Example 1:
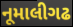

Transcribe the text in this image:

નૂમાલીગઢ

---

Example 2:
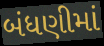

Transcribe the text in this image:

બંધણીમાં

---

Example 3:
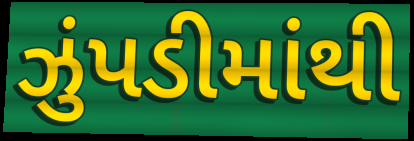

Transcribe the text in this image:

ઝુંપડીમાંથી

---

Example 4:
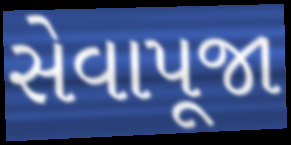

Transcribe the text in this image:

સેવાપૂજા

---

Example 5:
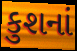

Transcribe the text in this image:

કુશનાં